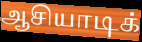
ஆசியாடிக்